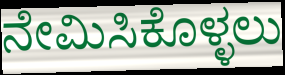
ನೇಮಿಸಿಕೊಳ್ಳಲು